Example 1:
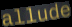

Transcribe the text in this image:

allude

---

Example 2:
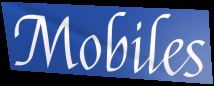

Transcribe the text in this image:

Mobiles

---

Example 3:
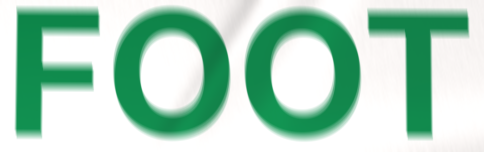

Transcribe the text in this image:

FOOT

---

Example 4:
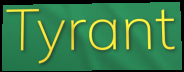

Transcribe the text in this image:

Tyrant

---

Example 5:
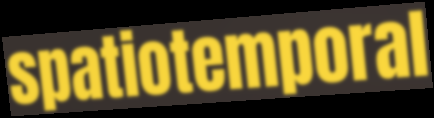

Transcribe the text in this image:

spatiotemporal